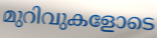
മുറിവുകളോടെ